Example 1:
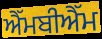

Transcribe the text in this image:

ਐੱਮਬੀਐੱਮ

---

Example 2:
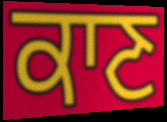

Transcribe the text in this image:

ਕਾਣ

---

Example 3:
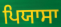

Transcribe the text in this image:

ਪਿਯਾਸਾ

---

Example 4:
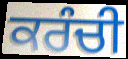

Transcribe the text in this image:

ਕਰੰਚੀ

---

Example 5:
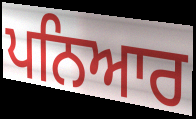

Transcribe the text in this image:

ਪਨਿਆਰ